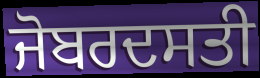
ਜੋਬਰਦਸਤੀ